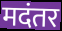
मदंतर